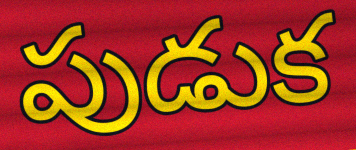
పుడుక